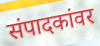
संपादकांवर